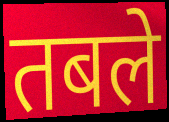
तबले